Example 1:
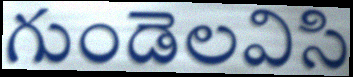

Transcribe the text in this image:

గుండెలవిసి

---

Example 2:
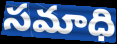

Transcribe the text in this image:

సమాధి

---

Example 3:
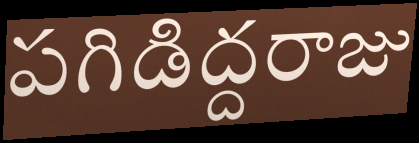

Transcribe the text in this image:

పగిడిద్దరాజు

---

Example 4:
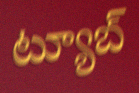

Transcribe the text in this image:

ట్యూబ్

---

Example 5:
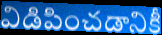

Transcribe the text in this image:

విడిపించడానికీ